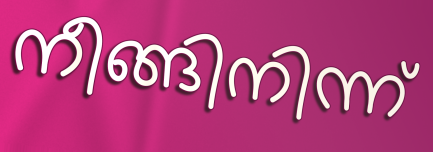
നീങ്ങിനിന്ന്